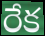
రేక